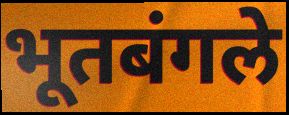
भूतबंगले